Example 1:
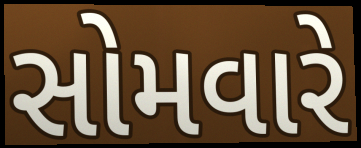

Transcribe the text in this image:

સોમવારે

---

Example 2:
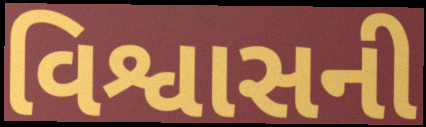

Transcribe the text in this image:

વિશ્વાસની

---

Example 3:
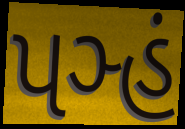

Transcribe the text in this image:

પઞ્હં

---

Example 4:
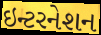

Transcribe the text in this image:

ઇન્ટરનેશન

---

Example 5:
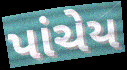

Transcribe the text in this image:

પાંચેય